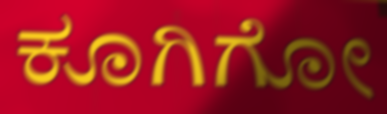
ಕೂಗಿಗೋ